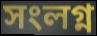
সংলগ্ন